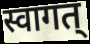
स्वागत्